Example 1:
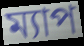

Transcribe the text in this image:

ম্যাপ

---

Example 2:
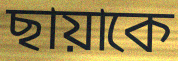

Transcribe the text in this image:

ছায়াকে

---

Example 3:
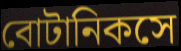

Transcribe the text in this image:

বোটানিকসে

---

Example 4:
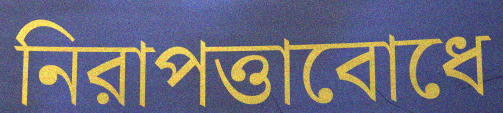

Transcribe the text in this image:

নিরাপত্তাবোধে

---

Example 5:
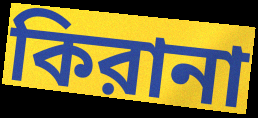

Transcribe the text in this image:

কিরানা